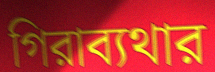
গিরাব্যথার